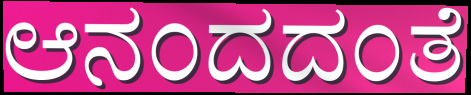
ಆನಂದದಂತೆ